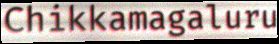
Chikkamagaluru